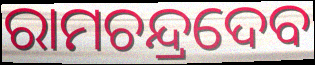
ରାମଚନ୍ଦ୍ରଦେବ